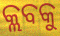
କ୍ଲବକୁ